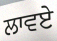
ਲਾਵਏ